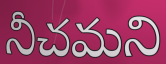
నీచమని